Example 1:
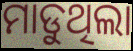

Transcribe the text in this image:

ମାଡୁଥିଲା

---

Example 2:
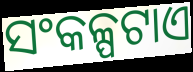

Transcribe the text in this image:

ସଂକଳ୍ପଟାଏ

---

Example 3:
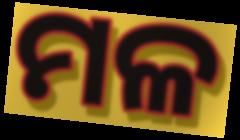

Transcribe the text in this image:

ମଳ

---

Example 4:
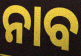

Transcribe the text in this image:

ନାବ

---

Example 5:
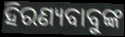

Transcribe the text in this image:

ହିରଣ୍ୟବାବୁଙ୍କ